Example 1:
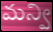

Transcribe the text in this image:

మన్వి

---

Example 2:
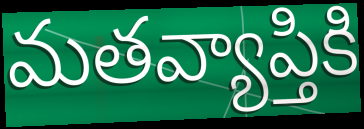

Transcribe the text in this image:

మతవ్యాప్తికి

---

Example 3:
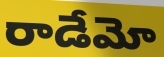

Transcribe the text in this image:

రాడేమో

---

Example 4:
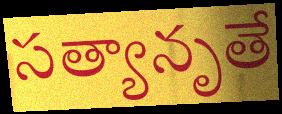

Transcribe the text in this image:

సత్యానృతే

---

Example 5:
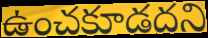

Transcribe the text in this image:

ఉంచకూడదని